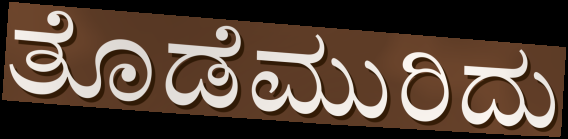
ತೊಡೆಮುರಿದು